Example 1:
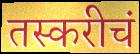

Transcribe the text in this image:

तस्करीचं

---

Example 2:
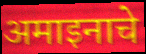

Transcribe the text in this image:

अमाइनाचे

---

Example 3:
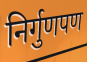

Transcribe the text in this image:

निर्गुणपण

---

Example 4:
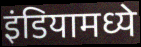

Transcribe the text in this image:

इंडियामध्ये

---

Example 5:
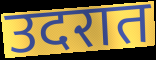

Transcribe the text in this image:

उदरात